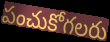
పంచుకోగలరు